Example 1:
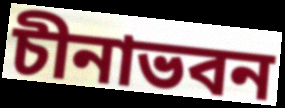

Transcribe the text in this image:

চীনাভবন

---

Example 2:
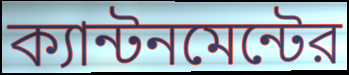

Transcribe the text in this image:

ক্যান্টনমেন্টের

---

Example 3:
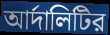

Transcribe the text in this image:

আর্দালিটির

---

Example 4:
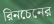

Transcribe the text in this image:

রিনচেনের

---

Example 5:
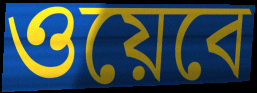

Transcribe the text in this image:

ওয়েবে